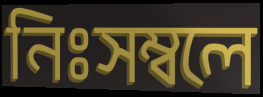
নিঃসম্বলে